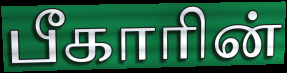
பீகாரின்